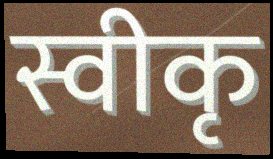
स्वीकृ